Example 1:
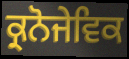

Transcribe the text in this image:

ਕ੍ਰਨੋਜੇਵਿਕ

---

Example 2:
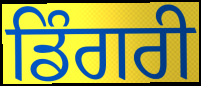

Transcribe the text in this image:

ਡਿੰਗਰੀ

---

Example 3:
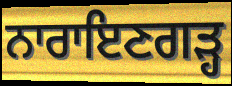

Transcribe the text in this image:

ਨਾਰਾਇਣਗੜ੍ਹ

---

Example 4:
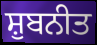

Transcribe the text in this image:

ਸ਼ੁਬਨੀਤ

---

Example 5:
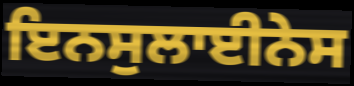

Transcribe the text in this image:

ਇਨਸੁਲਾਈਨੇਸ